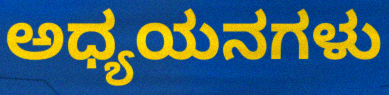
ಅಧ್ಯಯನಗಳು